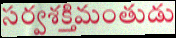
సర్వశక్తిమంతుడు